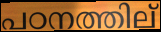
പഠനത്തില്